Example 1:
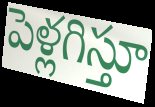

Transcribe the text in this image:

పెళ్లగిస్తూ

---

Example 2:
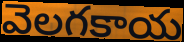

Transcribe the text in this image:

వెలగకాయ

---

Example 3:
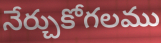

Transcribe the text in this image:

నేర్చుకోగలము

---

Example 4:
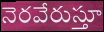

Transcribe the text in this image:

నెరవేరుస్తూ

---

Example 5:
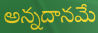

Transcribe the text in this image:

అన్నదానమే